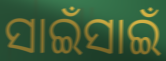
ସାଇଁସାଇଁ